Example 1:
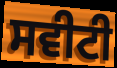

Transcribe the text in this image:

ਸਵੀਟੀ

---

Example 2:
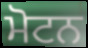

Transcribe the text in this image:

ਮੋਟਨ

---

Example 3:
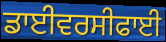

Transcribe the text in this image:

ਡਾਈਵਰਸੀਫਾਈ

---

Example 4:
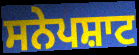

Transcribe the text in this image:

ਸਨੇਪਸ਼ਾਟ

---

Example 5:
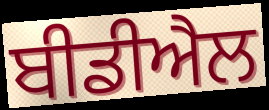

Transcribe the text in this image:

ਬੀਡੀਐਲ